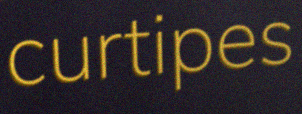
curtipes